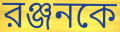
রঞ্জনকে